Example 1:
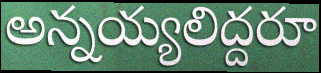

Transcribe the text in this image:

అన్నయ్యలిద్దరూ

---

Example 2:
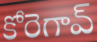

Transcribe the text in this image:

కోరెగావ్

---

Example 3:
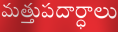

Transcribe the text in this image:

మత్తుపదార్ధాలు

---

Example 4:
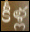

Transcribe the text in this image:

కీళ్ల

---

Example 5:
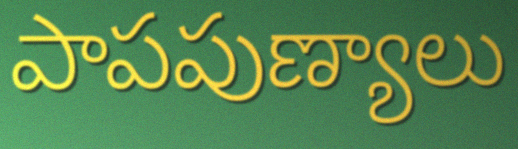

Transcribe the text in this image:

పాపపుణ్యాలు